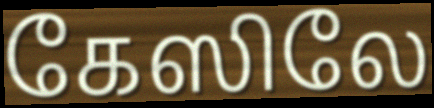
கேஸிலே